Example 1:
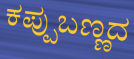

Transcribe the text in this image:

ಕಪ್ಪುಬಣ್ಣದ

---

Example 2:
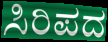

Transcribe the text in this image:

ಸಿರಿಪದ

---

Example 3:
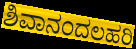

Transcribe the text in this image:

ಶಿವಾನಂದಲಹರಿ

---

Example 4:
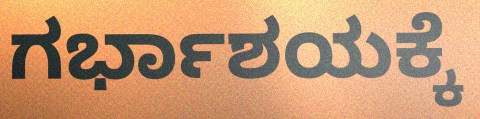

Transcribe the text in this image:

ಗರ್ಭಾಶಯಕ್ಕೆ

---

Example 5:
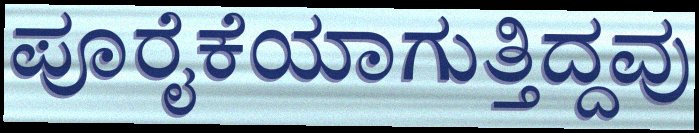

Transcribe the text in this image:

ಪೂರೈಕೆಯಾಗುತ್ತಿದ್ದವು